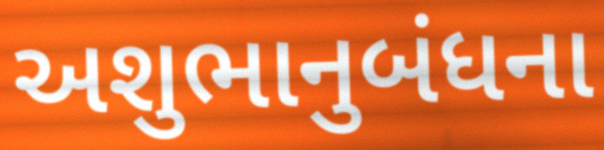
અશુભાનુબંધના